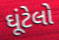
ઘૂંટેલો